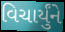
વિચાર્યુંને